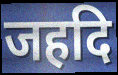
जहदि